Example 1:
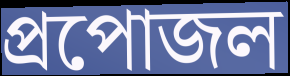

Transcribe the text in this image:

প্রপোজল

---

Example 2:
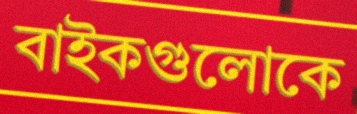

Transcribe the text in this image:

বাইকগুলোকে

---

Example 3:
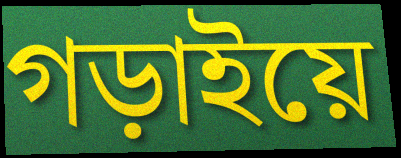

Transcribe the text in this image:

গড়াইয়ে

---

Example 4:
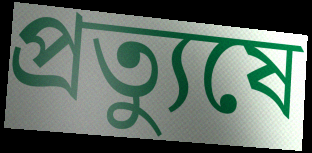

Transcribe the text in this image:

প্রত্যুষে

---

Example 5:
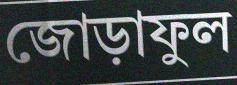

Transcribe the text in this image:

জোড়াফুল